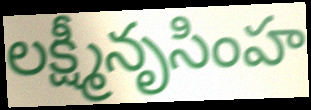
లక్ష్మీనృసింహ